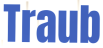
Traub